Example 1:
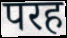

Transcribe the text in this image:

परह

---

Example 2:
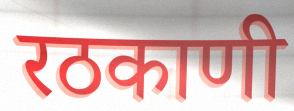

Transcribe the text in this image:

रठकाणी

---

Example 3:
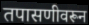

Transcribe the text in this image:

तपासणीवरून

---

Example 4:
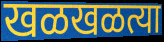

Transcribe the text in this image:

खळखळत्या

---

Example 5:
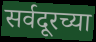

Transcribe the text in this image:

सर्वदूरच्या